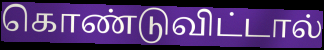
கொண்டுவிட்டால்